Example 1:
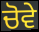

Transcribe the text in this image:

ਚੋਵੇ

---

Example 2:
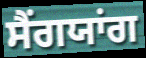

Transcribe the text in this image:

ਸੈਂਗਯਾਂਗ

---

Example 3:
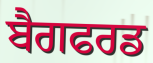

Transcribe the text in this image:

ਬੈਗਫਰਡ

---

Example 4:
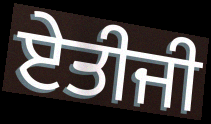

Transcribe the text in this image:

ਏਤੀਜੀ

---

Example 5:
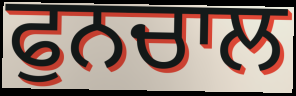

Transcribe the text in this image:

ਫੁਨਚਾਲ